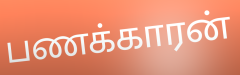
பணக்காரன்